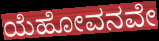
ಯೆಹೋವನವೇ